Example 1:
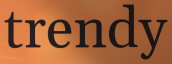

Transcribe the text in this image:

trendy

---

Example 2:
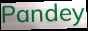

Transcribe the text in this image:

Pandey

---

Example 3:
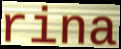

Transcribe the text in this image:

rina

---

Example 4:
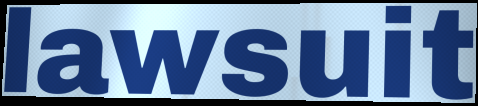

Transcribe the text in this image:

lawsuit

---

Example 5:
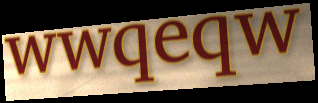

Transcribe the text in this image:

wwqeqw